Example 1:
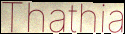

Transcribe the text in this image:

Thathia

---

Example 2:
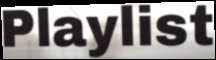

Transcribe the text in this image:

Playlist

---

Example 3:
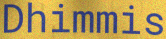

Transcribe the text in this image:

Dhimmis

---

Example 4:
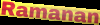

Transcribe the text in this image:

Ramanan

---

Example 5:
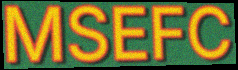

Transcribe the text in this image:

MSEFC